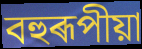
বহুৰূপীয়া